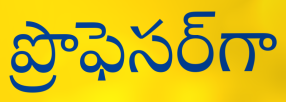
ప్రొఫెసర్‌గా